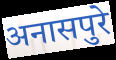
अनासपुरे